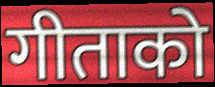
गीताको